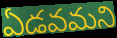
ఏడవమని